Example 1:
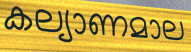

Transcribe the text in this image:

കല്യാണമാല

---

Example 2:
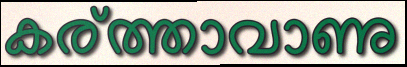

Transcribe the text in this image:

കര്ത്താവാണു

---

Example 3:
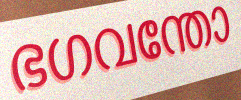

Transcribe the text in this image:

ഭഗവന്തോ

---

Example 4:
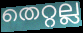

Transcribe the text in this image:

തെറ്റല്ല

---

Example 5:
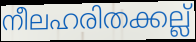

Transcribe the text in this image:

നീലഹരിതക്കല്ല്